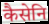
कैसेनि